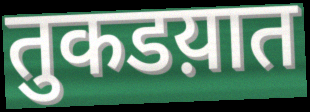
तुकडय़ात